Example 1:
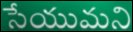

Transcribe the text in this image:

సేయుమని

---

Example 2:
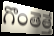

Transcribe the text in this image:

గొంతెత్తే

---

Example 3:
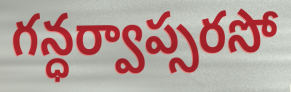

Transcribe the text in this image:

గన్ధర్వాప్సరసో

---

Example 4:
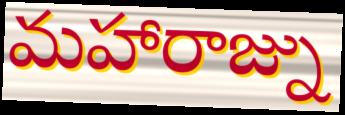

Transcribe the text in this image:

మహారాజ్ను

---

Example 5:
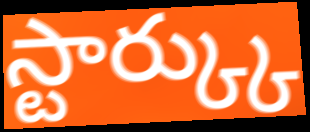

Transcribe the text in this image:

స్టార్క్కు